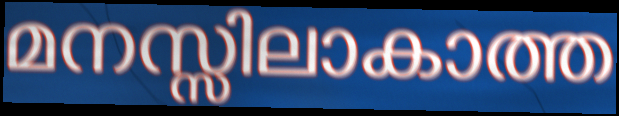
മനസ്സിലാകാത്ത